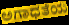
ಅಗಾಧತೆಯ